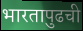
भारतापुढची